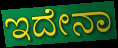
ಇದೇನಾ